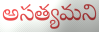
అసత్యమని